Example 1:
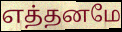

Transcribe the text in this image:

எத்தனமே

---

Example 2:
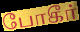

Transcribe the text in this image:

போகீர்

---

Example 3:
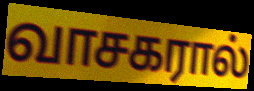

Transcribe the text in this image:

வாசகரால்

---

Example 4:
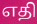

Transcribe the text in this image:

எதி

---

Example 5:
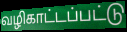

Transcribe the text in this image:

வழிகாட்டப்பட்டு